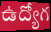
ఉద్యోగ